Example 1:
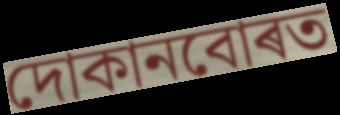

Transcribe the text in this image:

দোকানবোৰত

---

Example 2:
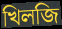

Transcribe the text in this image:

খিলজি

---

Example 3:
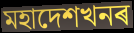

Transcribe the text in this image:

মহাদেশখনৰ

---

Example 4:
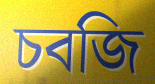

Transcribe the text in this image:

চবজি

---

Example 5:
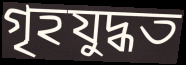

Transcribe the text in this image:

গৃহযুদ্ধত